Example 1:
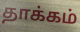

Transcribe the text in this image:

தாக்கம்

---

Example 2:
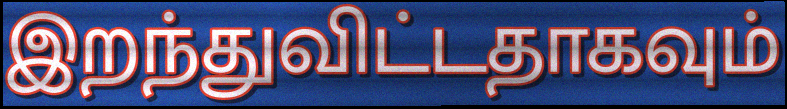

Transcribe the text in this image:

இறந்துவிட்டதாகவும்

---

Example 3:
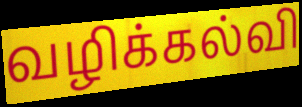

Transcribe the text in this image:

வழிக்கல்வி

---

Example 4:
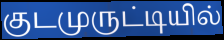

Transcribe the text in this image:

குடமுருட்டியில்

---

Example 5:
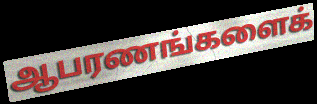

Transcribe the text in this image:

ஆபரணங்களைக்